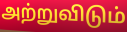
அற்றுவிடும்